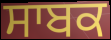
ਸਾਬਕ